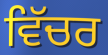
ਵਿੱਚਰ